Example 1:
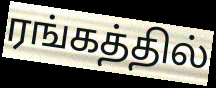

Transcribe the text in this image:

ரங்கத்தில்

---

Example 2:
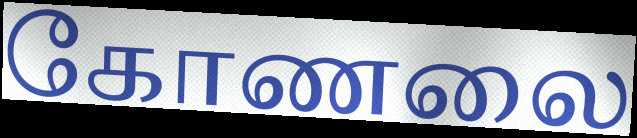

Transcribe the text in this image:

கோணலை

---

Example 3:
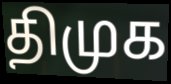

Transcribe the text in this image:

திமுக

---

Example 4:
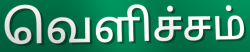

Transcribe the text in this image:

வெளிச்சம்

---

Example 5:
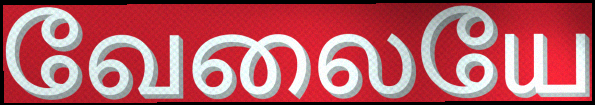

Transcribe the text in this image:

வேலையே